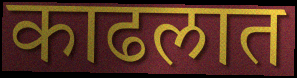
काढलात